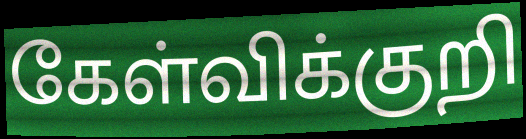
கேள்விக்குறி